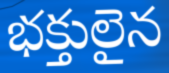
భక్తులైన